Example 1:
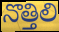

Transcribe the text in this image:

నొత్తిలి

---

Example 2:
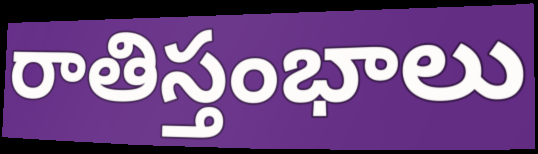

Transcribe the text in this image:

రాతిస్తంభాలు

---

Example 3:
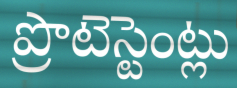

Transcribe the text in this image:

ప్రొటెస్టెంట్లు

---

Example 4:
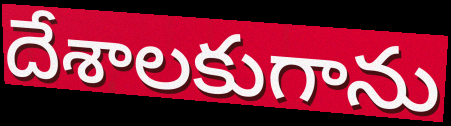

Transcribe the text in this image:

దేశాలకుగాను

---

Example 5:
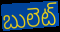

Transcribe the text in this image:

బులెట్